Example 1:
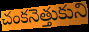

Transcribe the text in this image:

చంకనెత్తుకుని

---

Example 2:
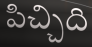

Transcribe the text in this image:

పిచ్చిది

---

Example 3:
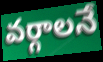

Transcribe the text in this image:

వర్గాలనే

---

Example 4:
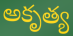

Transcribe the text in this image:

అకృత్య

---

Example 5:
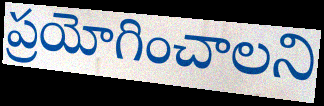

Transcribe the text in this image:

ప్రయోగించాలని